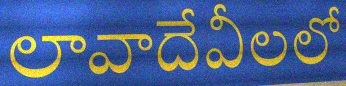
లావాదేవీలలో